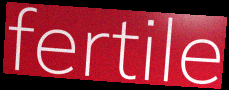
fertile